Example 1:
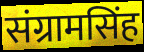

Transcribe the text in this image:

संग्रामसिंह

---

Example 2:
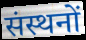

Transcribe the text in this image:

संस्थनों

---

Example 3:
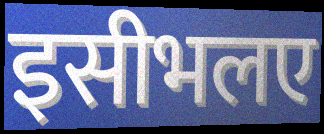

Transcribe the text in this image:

इसीभलए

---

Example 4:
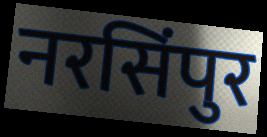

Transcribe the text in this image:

नरसिंपुर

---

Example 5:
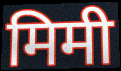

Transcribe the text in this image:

मिमी